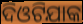
ଦିଓଟିଯାକ